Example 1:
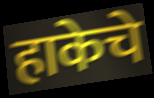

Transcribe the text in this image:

हाकेचे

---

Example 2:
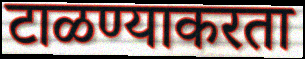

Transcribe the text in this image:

टाळण्याकरता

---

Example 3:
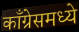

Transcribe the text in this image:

काँग्रेसमध्ये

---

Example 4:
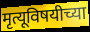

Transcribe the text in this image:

मृत्यूविषयीच्या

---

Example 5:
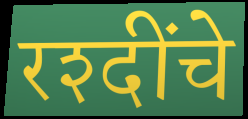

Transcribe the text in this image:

रश्दींचे